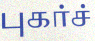
புகர்ச்